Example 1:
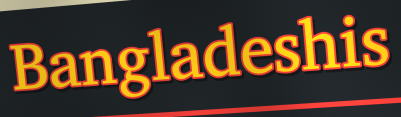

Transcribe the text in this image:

Bangladeshis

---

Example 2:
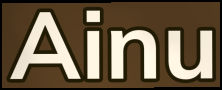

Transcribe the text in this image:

Ainu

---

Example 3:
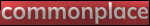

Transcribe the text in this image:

commonplace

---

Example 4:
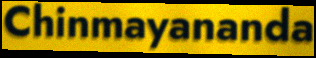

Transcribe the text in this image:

Chinmayananda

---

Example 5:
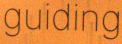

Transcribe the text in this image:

guiding